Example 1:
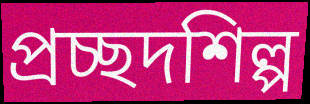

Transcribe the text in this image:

প্রচ্ছদশিল্প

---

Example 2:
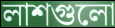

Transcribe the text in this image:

লাশগুলো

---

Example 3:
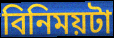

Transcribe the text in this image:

বিনিময়টা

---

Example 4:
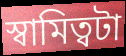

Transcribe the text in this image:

স্বামিত্বটা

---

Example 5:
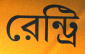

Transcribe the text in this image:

রেন্ট্রি